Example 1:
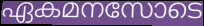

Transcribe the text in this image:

ഏകമനസോടെ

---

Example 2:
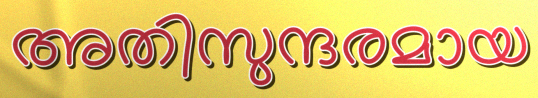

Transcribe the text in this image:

അതിസുന്ദരമായ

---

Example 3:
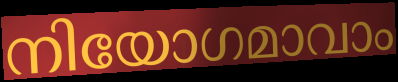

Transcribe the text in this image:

നിയോഗമാവാം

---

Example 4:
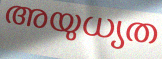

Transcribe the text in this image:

അയുധ്യത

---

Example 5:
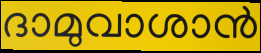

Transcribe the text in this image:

ദാമുവാശാൻ